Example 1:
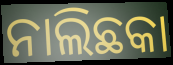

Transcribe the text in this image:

ନାଲିଛକା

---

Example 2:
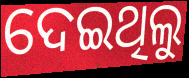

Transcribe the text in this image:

ଦେଇଥିଲୁ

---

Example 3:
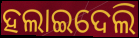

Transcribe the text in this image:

ହଲାଇଦେଲି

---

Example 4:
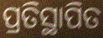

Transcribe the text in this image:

ପ୍ରତିସ୍ଥାପିତ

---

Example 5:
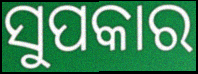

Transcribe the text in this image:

ସୁପକାର